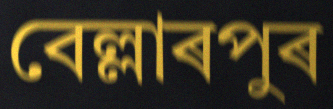
বেল্লাৰপুৰ